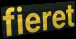
fieret